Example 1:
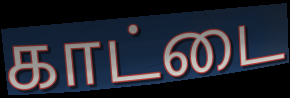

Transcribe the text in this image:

காட்டை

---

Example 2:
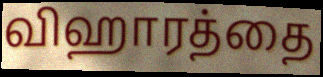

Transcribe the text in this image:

விஹாரத்தை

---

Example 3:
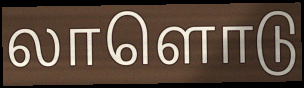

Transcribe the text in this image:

லாளொடு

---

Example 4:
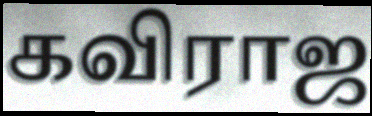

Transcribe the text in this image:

கவிராஜ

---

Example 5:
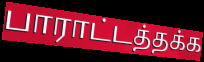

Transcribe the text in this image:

பாராட்டத்தக்க